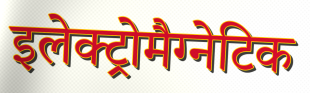
इलेक्ट्रोमैग्नेटिक